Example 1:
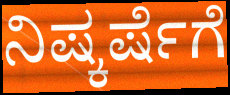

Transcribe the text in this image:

ನಿಷ್ಕರ್ಷೆಗೆ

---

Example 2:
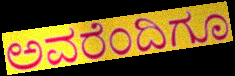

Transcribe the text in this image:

ಅವರೆಂದಿಗೂ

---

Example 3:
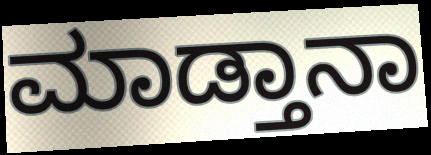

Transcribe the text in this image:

ಮಾಡ್ತಾನಾ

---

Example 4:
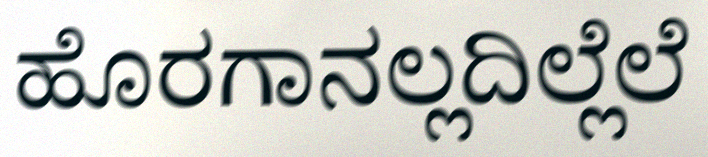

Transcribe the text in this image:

ಹೊರಗಾನಲ್ಲದಿಲ್ಲೆಲೆ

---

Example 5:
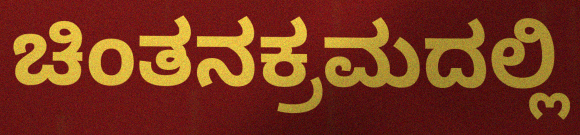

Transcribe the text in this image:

ಚಿಂತನಕ್ರಮದಲ್ಲಿ